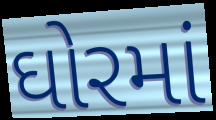
ઘોરમાં